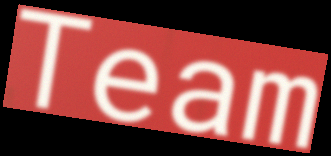
Team